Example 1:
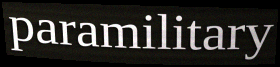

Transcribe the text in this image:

paramilitary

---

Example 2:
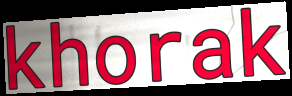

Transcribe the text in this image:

khorak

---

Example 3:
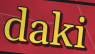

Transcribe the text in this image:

daki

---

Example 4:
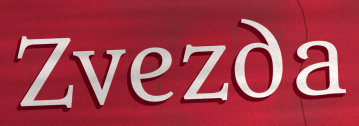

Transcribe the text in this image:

Zvezda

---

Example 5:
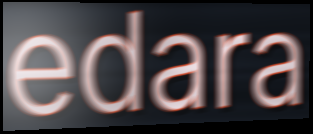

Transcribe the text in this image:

edara